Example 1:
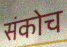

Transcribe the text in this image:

संकोच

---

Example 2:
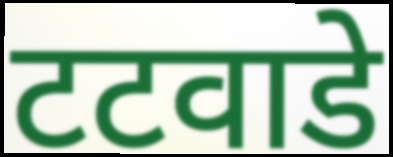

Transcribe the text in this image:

टटवाडे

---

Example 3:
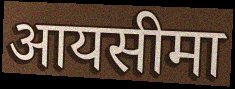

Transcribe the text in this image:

आयसीमा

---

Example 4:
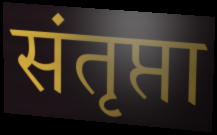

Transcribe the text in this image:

संतृप्ता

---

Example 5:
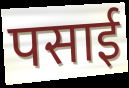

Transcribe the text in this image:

पसाई